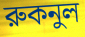
রুকনুল